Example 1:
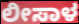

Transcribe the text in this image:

ಲೀಸಾಳ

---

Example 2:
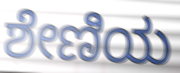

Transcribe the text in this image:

ಶೇಣಿಯ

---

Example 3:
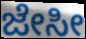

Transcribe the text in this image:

ಜೇಸೀ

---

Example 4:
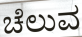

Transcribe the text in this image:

ಚೆಲುವ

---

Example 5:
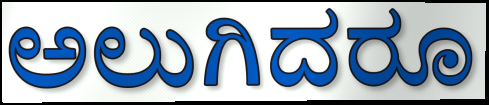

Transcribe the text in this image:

ಅಲುಗಿದರೂ